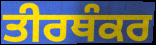
ਤੀਰਥੰਕਰ